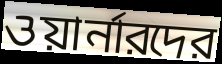
ওয়ার্নারদের